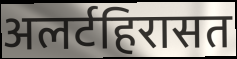
अलर्टहिरासत